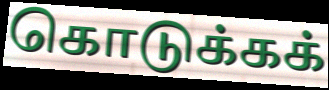
கொடுக்கக்